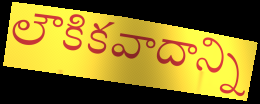
లౌకికవాదాన్ని